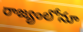
రాజ్యంలోనూ